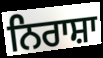
ਨਿਰਾਸ਼ਾ